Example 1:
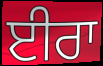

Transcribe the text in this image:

ਈਰਾ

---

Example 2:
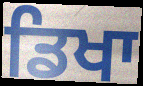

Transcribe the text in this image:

ਡਿਖਾ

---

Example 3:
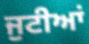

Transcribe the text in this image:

ਜੁਟੀਆਂ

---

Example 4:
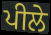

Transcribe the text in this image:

ਪੀਲੇ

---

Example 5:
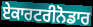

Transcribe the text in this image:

ਏਕਾਰਟਰੀਨੋਡਾਰ